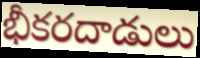
భీకరదాడులు